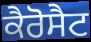
ਕੈਰੋਸੈਟ